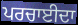
ਪਰਚਾਈਦਾ